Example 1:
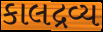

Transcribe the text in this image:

કાલદ્રવ્ય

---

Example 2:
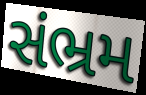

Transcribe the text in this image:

સંભ્રમ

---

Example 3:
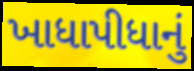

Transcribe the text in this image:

ખાધાપીધાનું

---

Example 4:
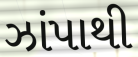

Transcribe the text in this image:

ઝાંપાથી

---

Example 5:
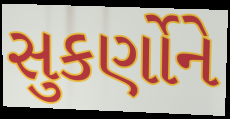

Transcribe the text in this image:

સુકર્ણોને